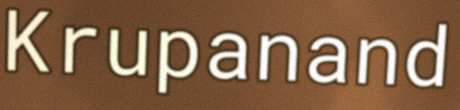
Krupanand